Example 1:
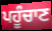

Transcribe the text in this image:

ਪਹੂੰਚਾਣ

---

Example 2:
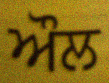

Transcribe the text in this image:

ਔਲ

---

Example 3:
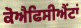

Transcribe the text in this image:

ਕੋਐਫਿਸੀਐਂਟਾਂ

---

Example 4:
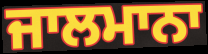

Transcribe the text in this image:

ਜਾਲਮਾਨਾ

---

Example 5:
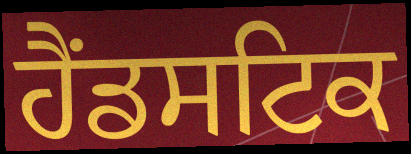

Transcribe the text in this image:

ਹੈਂਡਸਟਿਕ